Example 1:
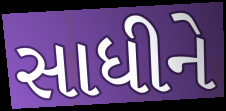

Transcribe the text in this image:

સાધીને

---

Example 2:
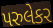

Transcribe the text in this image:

પરુલેકર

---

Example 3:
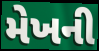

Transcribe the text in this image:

મેખની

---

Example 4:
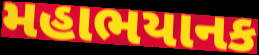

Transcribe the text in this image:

મહાભયાનક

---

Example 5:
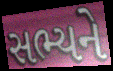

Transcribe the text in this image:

સભ્યને